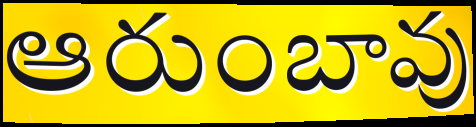
ఆరుంబావు